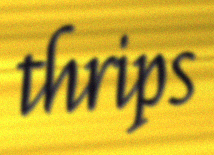
thrips